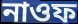
নাওফ